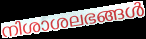
നിശാശലഭങ്ങൾ